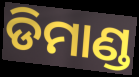
ଡିମାଣ୍ଡ